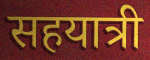
सहयात्री